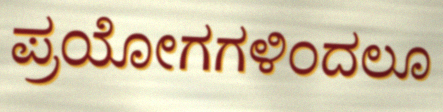
ಪ್ರಯೋಗಗಳಿಂದಲೂ